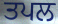
ਤਪਲ